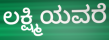
ಲಕ್ಷ್ಮಿಯವರೆ